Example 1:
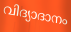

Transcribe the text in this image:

വിദ്യാദാനം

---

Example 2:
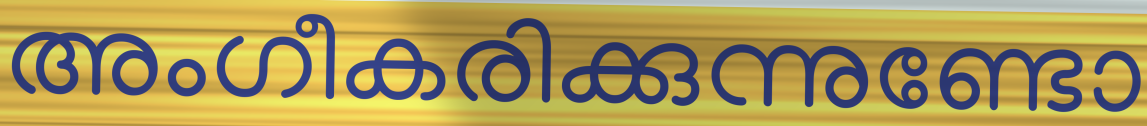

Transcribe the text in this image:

അംഗീകരിക്കുന്നുണ്ടോ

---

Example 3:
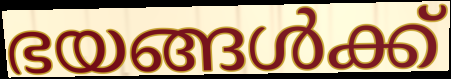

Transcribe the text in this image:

ഭയങ്ങൾക്ക്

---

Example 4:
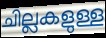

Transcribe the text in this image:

ചില്ലകളുള്ള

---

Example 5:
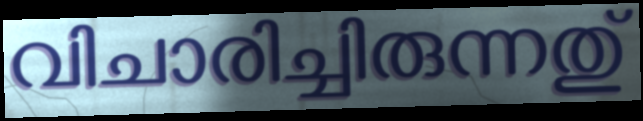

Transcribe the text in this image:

വിചാരിച്ചിരുന്നതു്